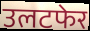
उलटफेर